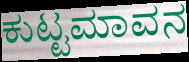
ಕುಟ್ಟಮಾವನ